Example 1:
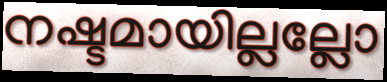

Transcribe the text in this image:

നഷ്ടമായില്ലല്ലോ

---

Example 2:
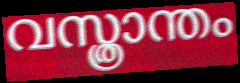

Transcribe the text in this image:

വസ്ത്രാന്തം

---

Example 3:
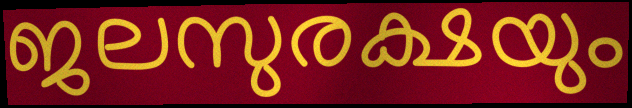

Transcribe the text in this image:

ജലസുരക്ഷയും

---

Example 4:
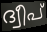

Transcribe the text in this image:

ദ്വീപ്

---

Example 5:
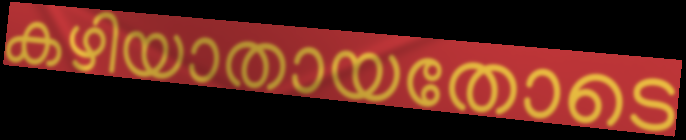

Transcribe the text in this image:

കഴിയാതായതോടെ